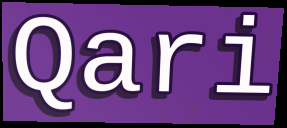
Qari